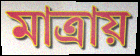
মাত্রায়